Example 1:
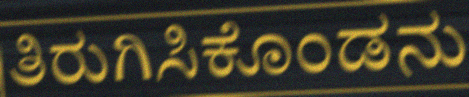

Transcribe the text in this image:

ತಿರುಗಿಸಿಕೊಂಡನು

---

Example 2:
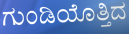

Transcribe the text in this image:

ಗುಂಡಿಯೊತ್ತಿದ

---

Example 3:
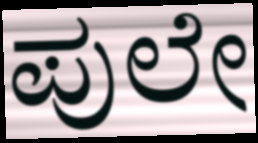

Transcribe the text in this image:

ಪುಲೇ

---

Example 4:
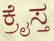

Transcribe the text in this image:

ಕ್ರೈಸ್ತ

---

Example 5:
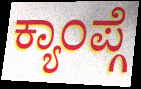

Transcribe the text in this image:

ಕ್ಯಾಂಪ್ಗೆ